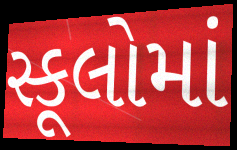
સ્કૂલોમાં